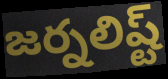
జర్నలిష్ట్